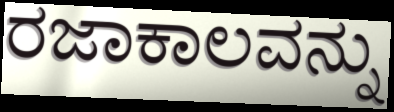
ರಜಾಕಾಲವನ್ನು